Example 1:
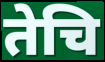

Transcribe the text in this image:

तेचि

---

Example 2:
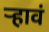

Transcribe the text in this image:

र्‍हावं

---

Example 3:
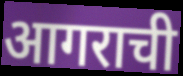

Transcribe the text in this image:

आगराची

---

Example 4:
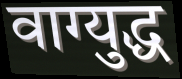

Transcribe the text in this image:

वाग्युद्ध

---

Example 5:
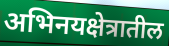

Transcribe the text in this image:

अभिनयक्षेत्रातील